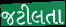
જટીલતા